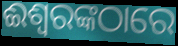
ଈଶ୍ୱରଙ୍କଠାରେ